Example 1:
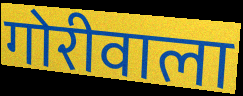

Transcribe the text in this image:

गोरीवाला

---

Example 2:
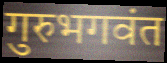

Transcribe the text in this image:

गुरुभगवंत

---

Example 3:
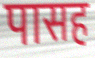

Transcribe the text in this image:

पासह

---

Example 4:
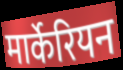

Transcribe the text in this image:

मार्केरियन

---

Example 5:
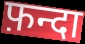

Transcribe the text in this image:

फ़न्दा